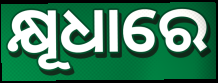
କ୍ଷୂଧାରେ